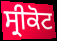
ਸ੍ਰੀਕੋਟ